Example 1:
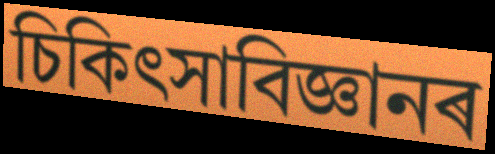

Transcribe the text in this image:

চিকিৎসাবিজ্ঞানৰ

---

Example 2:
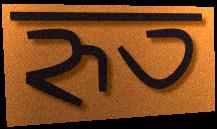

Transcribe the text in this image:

হৃত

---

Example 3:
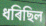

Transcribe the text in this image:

ধৰিছিল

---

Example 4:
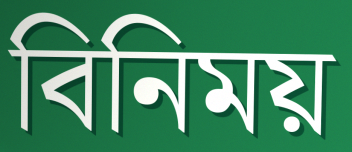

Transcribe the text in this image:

বিনিময়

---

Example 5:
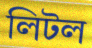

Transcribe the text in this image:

লিটল